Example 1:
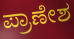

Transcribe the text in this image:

ಪ್ರಾಣೇಶ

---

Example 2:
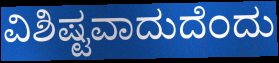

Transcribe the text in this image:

ವಿಶಿಷ್ಟವಾದುದೆಂದು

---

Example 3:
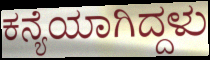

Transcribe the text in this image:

ಕನ್ಯೆಯಾಗಿದ್ದಳು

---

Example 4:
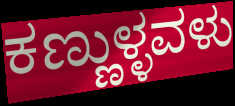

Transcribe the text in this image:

ಕಣ್ಣುಳ್ಳವಳು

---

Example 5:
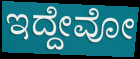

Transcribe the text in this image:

ಇದ್ದೇವೋ